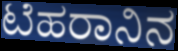
ಟೆಹರಾನಿನ